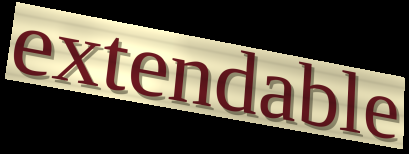
extendable